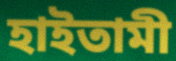
হাইতামী